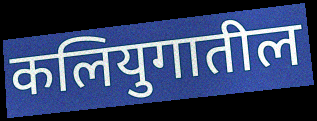
कलियुगातील